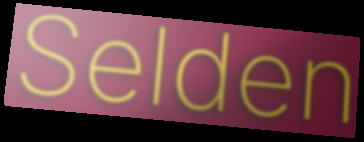
Selden